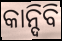
କାନ୍ଦିବି